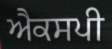
ਐਕਸਪੀ